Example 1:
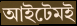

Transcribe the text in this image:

আইটেমই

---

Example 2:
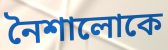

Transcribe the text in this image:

নৈশালোকে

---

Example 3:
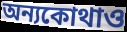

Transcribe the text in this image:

অন্যকোথাও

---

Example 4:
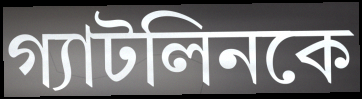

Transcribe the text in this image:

গ্যাটলিনকে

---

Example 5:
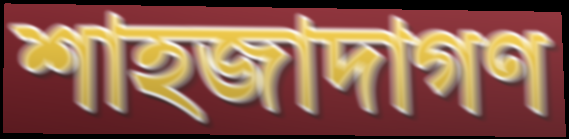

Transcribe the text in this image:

শাহজাদাগণ